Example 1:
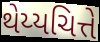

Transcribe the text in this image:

થેય્યચિત્તે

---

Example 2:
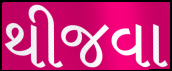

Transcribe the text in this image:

થીજવા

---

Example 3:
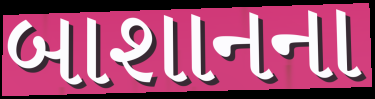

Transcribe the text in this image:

બાશાનના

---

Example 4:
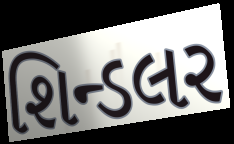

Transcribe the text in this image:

શિન્ડલર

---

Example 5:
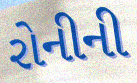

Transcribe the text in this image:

રોનીની